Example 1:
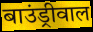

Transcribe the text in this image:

बाउंड्रीवाल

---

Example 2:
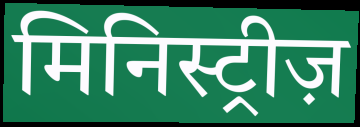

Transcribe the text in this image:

मिनिस्ट्रीज़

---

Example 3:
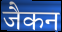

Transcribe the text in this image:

जैकन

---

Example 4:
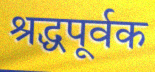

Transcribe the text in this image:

श्रद्धपूर्वक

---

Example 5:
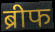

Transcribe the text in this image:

ब्रीफ